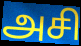
அசி